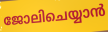
ജോലിചെയ്യാൻ